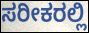
ಸರೀಕರಲ್ಲಿ